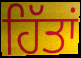
ਹਿੱਤਾਂ